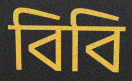
বিবি